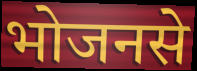
भोजनसे